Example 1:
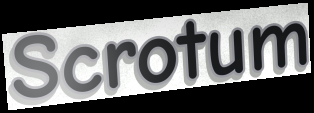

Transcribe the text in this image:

Scrotum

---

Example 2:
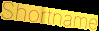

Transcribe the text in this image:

Shortname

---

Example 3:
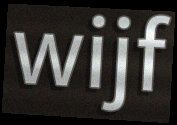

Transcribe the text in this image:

wijf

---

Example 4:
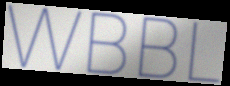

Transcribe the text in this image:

WBBL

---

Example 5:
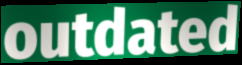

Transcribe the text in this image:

outdated